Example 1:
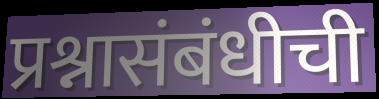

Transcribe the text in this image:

प्रश्नासंबंधीची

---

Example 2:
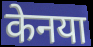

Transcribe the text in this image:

केनया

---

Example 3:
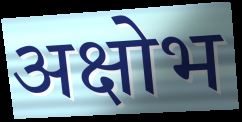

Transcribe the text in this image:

अक्षोभ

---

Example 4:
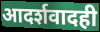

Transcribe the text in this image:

आदर्शवादही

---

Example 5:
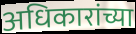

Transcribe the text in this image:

अधिकारांच्या